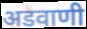
अडवाणी